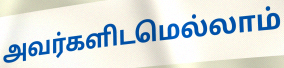
அவர்களிடமெல்லாம்